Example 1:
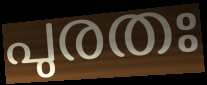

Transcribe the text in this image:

പുരതഃ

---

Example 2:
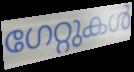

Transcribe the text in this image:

ഗേറ്റുകൾ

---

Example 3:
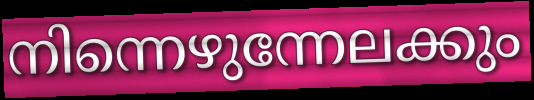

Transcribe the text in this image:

നിന്നെഴുന്നേലക്കും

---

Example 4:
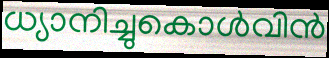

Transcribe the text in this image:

ധ്യാനിച്ചുകൊൾവിൻ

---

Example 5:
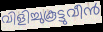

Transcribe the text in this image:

വിളിച്ചുകൂട്ടുവീൻ